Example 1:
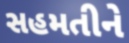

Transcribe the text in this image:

સહમતીને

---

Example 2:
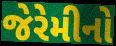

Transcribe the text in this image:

જેરેમીનો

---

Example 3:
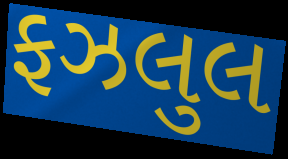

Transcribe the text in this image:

ફઝલુલ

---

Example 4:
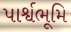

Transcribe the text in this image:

પાર્શ્વભૂમિ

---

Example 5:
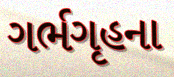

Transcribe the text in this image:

ગર્ભગૃહના